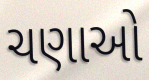
ચણાઓ